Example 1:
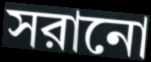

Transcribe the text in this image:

সরানো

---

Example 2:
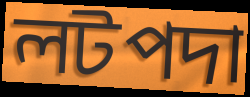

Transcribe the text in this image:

লটপদা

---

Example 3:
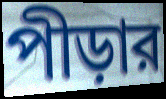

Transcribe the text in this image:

পীড়ার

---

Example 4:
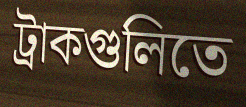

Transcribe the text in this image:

ট্রাকগুলিতে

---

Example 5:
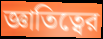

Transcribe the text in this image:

জ্ঞাতিত্বের